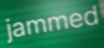
jammed